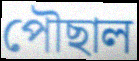
পৌছাল